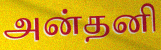
அன்தனி